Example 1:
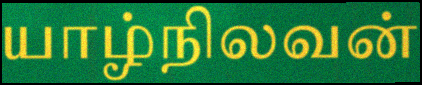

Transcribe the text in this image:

யாழ்நிலவன்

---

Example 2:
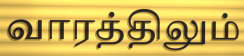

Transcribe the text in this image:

வாரத்திலும்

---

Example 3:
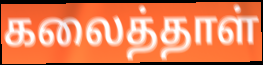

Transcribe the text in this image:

கலைத்தாள்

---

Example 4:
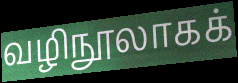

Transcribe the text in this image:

வழிநூலாகக்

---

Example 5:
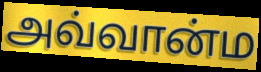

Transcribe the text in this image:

அவ்வான்ம